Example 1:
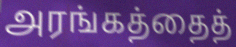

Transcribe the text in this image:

அரங்கத்தைத்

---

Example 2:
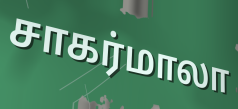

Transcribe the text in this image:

சாகர்மாலா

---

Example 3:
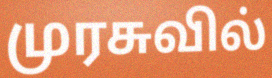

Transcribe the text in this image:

முரசுவில்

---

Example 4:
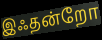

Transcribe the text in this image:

இஃதன்றோ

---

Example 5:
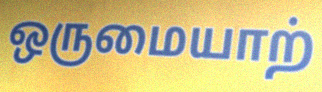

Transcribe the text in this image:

ஒருமையாற்